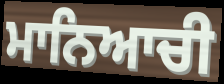
ਮਾਨਿਆਚੀ